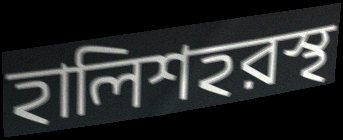
হালিশহরস্থ